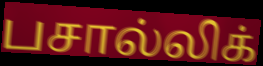
பசால்லிக்